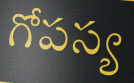
గోపస్య